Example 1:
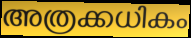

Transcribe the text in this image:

അത്രക്കധികം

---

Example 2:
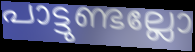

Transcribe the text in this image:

പാട്ടുണ്ടല്ലോ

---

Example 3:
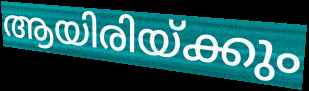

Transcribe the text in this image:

ആയിരിയ്ക്കും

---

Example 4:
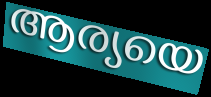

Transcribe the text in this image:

ആര്യയെ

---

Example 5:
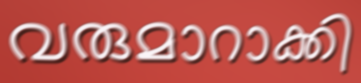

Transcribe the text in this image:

വരുമാറാക്കി